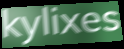
kylixes